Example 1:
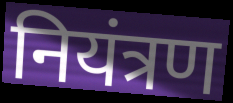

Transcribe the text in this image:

नियंत्रण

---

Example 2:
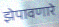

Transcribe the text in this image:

झेपावणारे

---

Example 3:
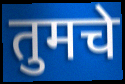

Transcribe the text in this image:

तुमचे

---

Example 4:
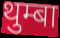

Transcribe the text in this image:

थुम्बा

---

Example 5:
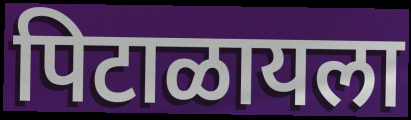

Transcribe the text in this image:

पिटाळायला